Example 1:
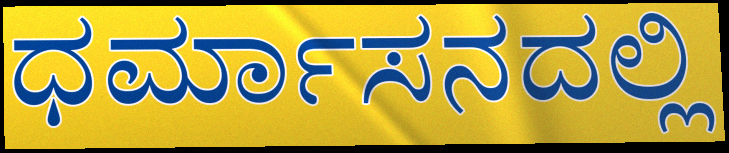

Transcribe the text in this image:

ಧರ್ಮಾಸನದಲ್ಲಿ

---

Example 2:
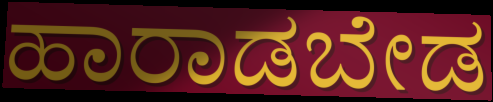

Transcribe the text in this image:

ಹಾರಾಡಬೇಡ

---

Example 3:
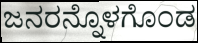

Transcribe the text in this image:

ಜನರನ್ನೊಳಗೊಂಡ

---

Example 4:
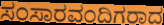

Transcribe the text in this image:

ಸಂಸಾರವಂದಿಗರಾದ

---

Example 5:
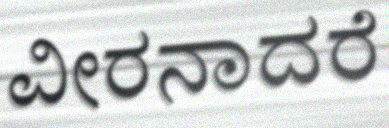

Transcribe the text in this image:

ವೀರನಾದರೆ